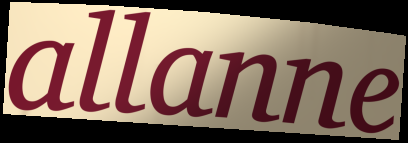
allanne